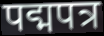
पद्मपत्र